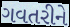
ગવતરીને